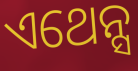
ଏଥେନ୍ସ